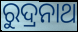
ରୁଦ୍ରନାଥ